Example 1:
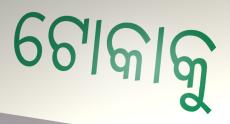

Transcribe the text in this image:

ଟୋକାକୁ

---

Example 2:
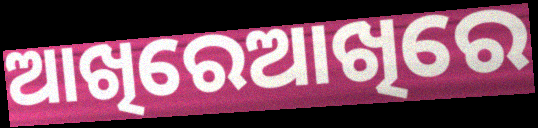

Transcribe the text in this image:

ଆଖିରେଆଖିରେ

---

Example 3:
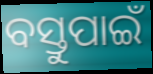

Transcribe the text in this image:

ବସ୍ତୁପାଇଁ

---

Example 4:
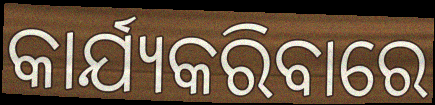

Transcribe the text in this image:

କାର୍ଯ୍ୟକରିବାରେ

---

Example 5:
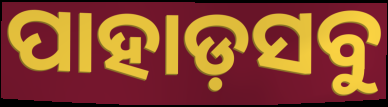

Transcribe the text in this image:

ପାହାଡ଼ସବୁ